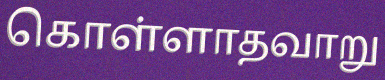
கொள்ளாதவாறு